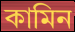
কামিন